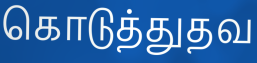
கொடுத்துதவ